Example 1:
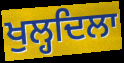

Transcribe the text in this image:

ਖੁਲ੍ਹਦਿਲਾ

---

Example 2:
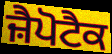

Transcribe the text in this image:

ਜ਼ੈਪੋਟੈਕ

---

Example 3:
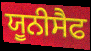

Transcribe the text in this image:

ਯੂਨੀਸੈਫ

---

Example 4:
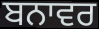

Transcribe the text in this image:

ਬਨਾਵਰ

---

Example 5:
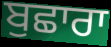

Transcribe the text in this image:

ਬੁਛਾਰਾ